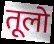
तूलो